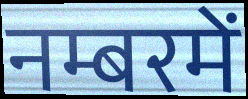
नम्बरमें